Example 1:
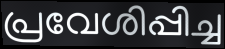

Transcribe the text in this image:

പ്രവേശിപ്പിച്ച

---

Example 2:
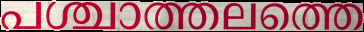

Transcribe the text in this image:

പശ്ചാത്തലത്തെ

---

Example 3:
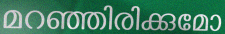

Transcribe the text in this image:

മറഞ്ഞിരിക്കുമോ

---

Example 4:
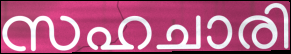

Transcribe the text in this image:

സഹചാരി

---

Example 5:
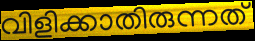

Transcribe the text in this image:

വിളിക്കാതിരുന്നത്